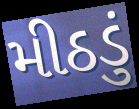
મીઠડું